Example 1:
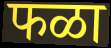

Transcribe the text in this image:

फळा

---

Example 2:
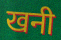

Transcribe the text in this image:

खनी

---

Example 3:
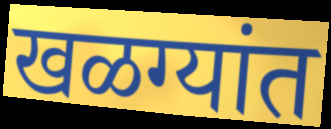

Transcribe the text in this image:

खळग्यांत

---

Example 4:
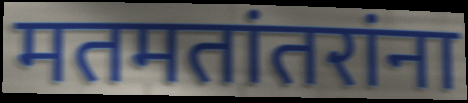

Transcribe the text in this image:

मतमतांतरांना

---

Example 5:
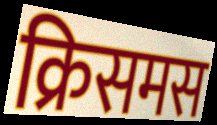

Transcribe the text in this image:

क्रिसमस